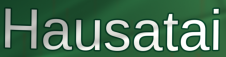
Hausatai